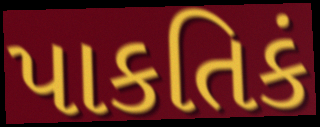
પાકતિકં